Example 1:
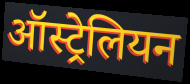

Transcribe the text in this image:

ऑस्ट्रेलियन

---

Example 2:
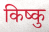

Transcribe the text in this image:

किष्कु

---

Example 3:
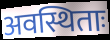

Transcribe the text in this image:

अवस्थिताः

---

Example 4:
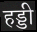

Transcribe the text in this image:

हड्डी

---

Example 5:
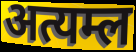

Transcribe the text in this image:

अत्यम्ल